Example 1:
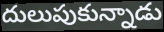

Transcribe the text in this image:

దులుపుకున్నాడు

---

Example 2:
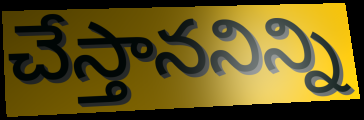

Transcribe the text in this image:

చేస్తాననిన్ని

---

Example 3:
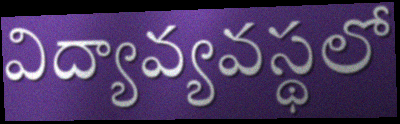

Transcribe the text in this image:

విద్యావ్యవస్థలో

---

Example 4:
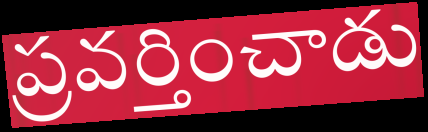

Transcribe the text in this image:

ప్రవర్తించాడు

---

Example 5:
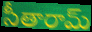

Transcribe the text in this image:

సీతారామ్